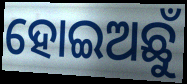
ହୋଇଅଛୁଁ